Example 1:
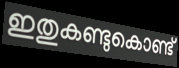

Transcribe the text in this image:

ഇതുകണ്ടുകൊണ്ട്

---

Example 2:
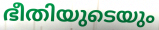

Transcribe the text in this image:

ഭീതിയുടെയും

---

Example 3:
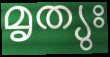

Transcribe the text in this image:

മൃത്യുഃ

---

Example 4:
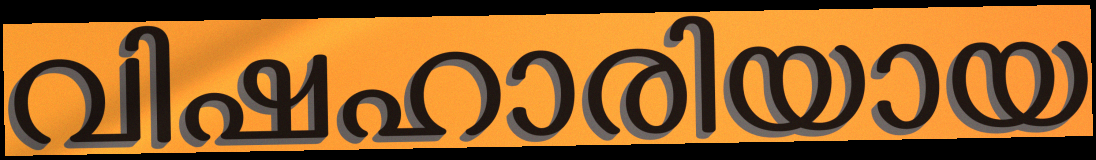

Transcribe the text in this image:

വിഷഹാരിയായ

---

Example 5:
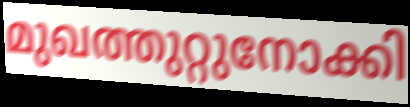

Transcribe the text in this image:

മുഖത്തുറ്റുനോക്കി